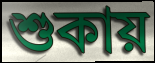
শুকায়